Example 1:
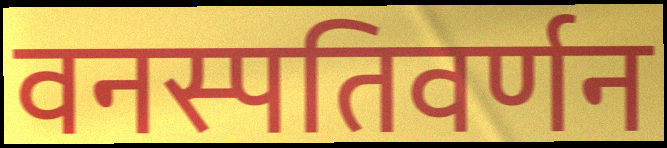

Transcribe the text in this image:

वनस्पतिवर्णन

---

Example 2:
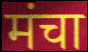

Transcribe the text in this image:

मंचा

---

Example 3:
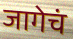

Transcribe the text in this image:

जागेचं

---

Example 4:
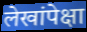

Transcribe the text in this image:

लेखांपेक्षा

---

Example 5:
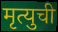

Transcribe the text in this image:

मृत्युची